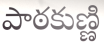
పాఠకుణ్ణి